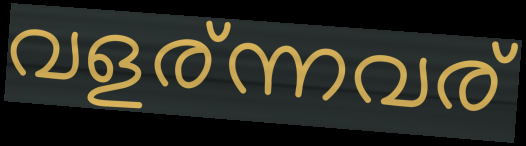
വളര്ന്നവര്